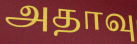
அதாவு